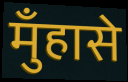
मुँहासे